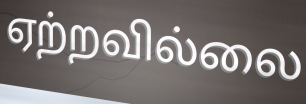
ஏற்றவில்லை